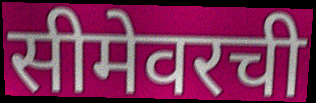
सीमेवरची